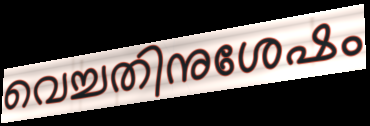
വെച്ചതിനുശേഷം